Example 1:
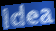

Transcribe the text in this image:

Idea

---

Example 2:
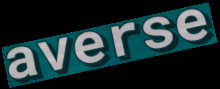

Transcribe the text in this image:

averse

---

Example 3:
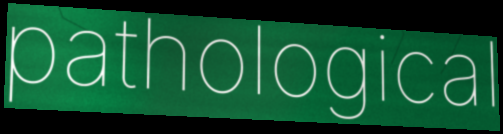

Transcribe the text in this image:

pathological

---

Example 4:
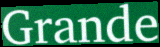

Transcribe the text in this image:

Grande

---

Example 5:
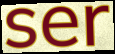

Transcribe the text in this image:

ser